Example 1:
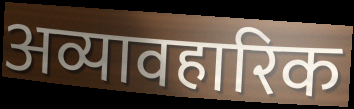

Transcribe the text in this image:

अव्यावहारिक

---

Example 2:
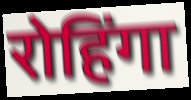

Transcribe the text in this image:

रोहिंगा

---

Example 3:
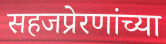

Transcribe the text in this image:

सहजप्रेरणांच्या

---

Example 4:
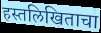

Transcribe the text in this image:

हस्तलिखिताचा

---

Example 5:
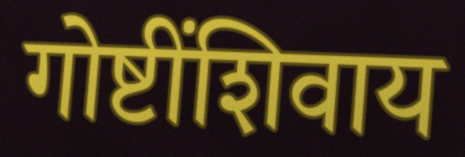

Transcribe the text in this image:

गोष्टींशिवाय